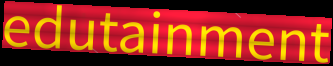
edutainment